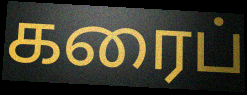
கரைப்